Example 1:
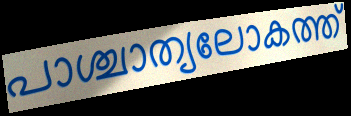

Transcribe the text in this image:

പാശ്ചാത്യലോകത്ത്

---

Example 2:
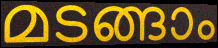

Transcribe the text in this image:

മടങ്ങാം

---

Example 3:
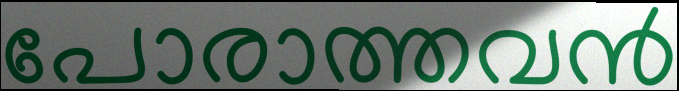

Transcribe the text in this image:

പോരാത്തവൻ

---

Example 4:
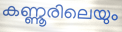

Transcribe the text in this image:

കണ്ണൂരിലെയും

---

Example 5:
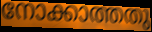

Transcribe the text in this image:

നോക്കാത്തതു